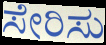
ಸೇರಿಸು